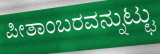
ಪೀತಾಂಬರವನ್ನುಟ್ಟು